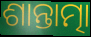
ଶାନ୍ତାତ୍ମା